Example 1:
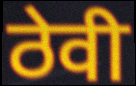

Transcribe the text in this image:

ठेवी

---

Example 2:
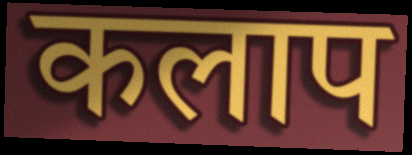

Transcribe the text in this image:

कलाप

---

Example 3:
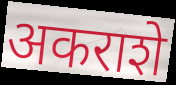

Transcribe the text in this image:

अकराशे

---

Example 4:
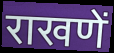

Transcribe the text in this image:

राखणें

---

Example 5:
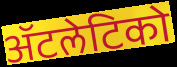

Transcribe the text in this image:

ॲटलेटिको